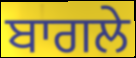
ਬਾਗਲੇ